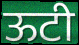
ऊटी